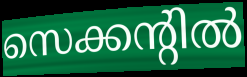
സെക്കന്റിൽ